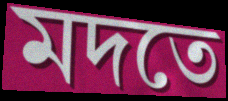
মদতে